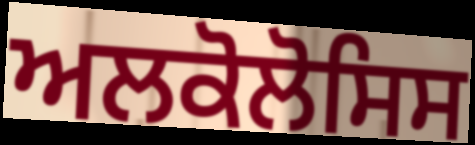
ਅਲਕੋਲੋਸਿਸ